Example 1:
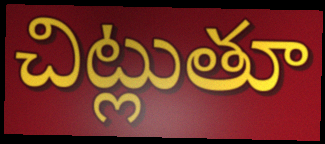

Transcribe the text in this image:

చిట్లుతూ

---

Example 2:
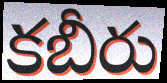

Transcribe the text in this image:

కబీరు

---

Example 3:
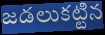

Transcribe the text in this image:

జడలుకట్టిన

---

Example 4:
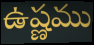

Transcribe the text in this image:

ఉష్ణము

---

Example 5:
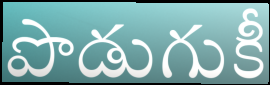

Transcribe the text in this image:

పొడుగుకీ